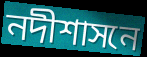
নদীশাসনে